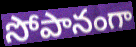
సోపానంగా